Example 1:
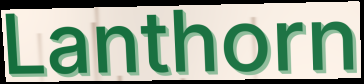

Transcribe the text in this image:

Lanthorn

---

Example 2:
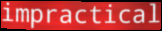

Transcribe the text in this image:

impractical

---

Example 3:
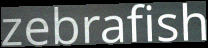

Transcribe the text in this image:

zebrafish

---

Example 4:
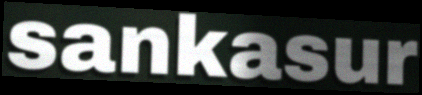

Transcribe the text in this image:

sankasur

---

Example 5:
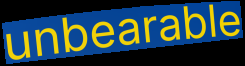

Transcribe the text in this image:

unbearable